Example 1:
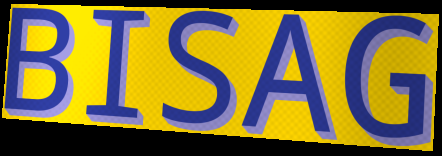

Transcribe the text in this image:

BISAG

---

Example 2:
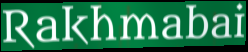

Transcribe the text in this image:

Rakhmabai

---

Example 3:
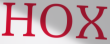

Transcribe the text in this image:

HOX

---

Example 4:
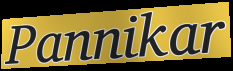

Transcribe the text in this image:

Pannikar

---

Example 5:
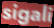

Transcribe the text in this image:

sigali